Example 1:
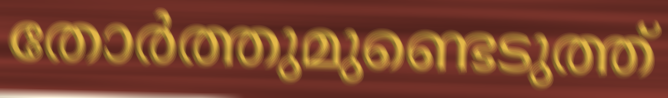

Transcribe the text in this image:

തോർത്തുമുണ്ടെടുത്ത്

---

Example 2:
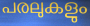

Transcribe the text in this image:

പരലുകളും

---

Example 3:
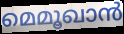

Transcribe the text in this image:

മെമൂഖാൻ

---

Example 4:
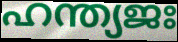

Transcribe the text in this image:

ഹന്ത്യജഃ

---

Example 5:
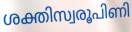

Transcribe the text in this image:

ശക്തിസ്വരൂപിണി